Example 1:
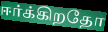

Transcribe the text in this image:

ஈர்க்கிறதோ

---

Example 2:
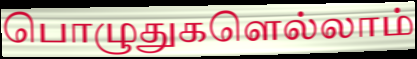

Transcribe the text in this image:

பொழுதுகளெல்லாம்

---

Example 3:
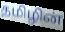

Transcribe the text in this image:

தமிழின்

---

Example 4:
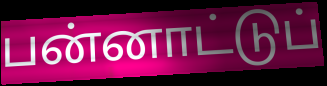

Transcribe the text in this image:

பன்னாட்டுப்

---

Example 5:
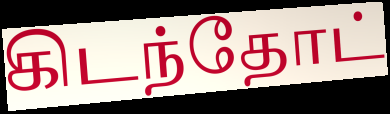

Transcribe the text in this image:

கிடந்தோட்